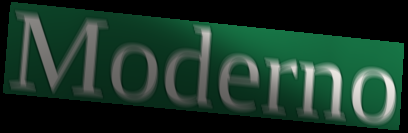
Moderno